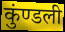
कुंण्डली